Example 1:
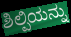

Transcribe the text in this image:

ಶಿಲ್ಪಿಯನ್ನು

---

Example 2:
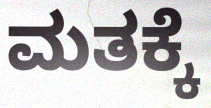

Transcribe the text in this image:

ಮತಕ್ಕೆ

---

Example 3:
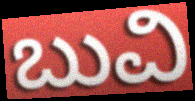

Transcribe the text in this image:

ಬುವಿ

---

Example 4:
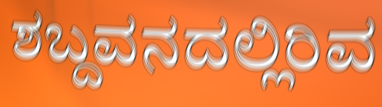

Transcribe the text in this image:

ಶಬ್ದವನದಲ್ಲಿರಿವ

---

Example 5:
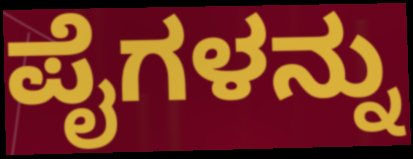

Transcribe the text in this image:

ಪೈಗಳನ್ನು